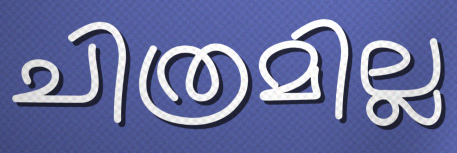
ചിത്രമില്ല